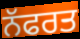
ਨੱਫਰਤ